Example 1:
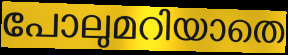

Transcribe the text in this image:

പോലുമറിയാതെ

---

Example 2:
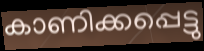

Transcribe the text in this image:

കാണിക്കപ്പെട്ടു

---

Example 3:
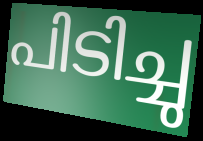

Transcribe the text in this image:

പിടിച്ചു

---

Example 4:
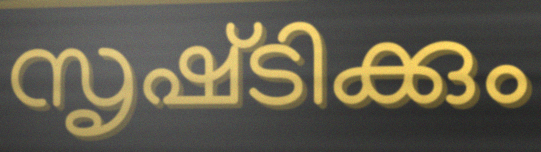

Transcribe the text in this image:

സൃഷ്‌ടിക്കും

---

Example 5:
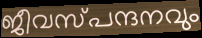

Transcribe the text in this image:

ജീവസ്പന്ദനവും